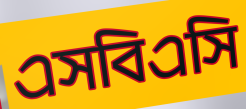
এসবিএসি